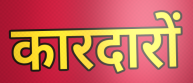
कारदारों